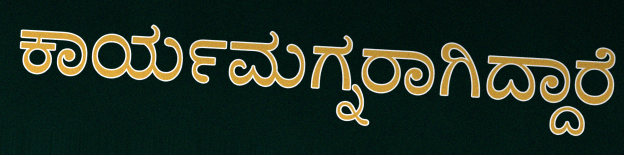
ಕಾರ್ಯಮಗ್ನರಾಗಿದ್ದಾರೆ